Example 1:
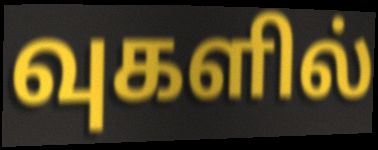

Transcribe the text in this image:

வுகளில்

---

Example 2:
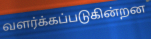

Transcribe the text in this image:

வளர்க்கப்படுகின்றன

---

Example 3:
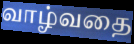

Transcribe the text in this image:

வாழ்வதை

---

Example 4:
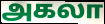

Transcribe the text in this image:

அகலா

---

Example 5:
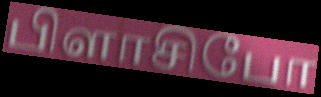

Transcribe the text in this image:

பிளாசிபோ